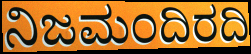
ನಿಜಮಂದಿರದಿ